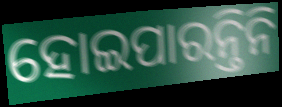
ହୋଇପାରନ୍ତିନି